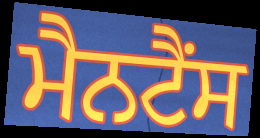
ਮੈਨਟੈਂਸ